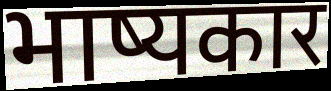
भाष्यकार